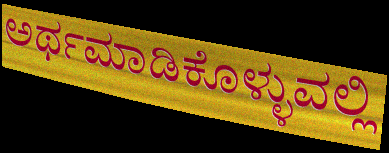
ಅರ್ಥಮಾಡಿಕೊಳ್ಳುವಲ್ಲಿ